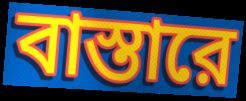
বাস্তারে